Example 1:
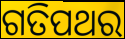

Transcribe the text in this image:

ଗତିପଥର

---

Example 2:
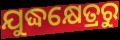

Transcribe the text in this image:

ଯୁଦ୍ଧକ୍ଷେତ୍ରରୁ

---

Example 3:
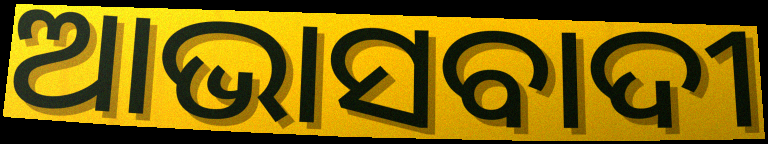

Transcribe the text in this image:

ଆଭାସବାଦୀ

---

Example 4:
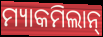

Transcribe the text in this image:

ମ୍ୟାକମିଲାନ୍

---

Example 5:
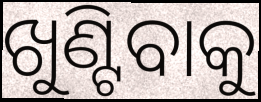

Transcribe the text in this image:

ଖୁଣ୍ଟିବାକୁ